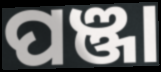
ପଞ୍ଜା